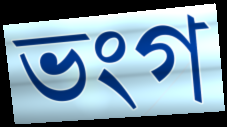
ভংগ